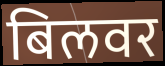
बिलवर